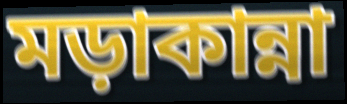
মড়াকান্না